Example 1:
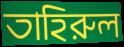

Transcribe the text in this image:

তাহিরুল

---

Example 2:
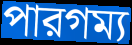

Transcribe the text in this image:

পারগম্য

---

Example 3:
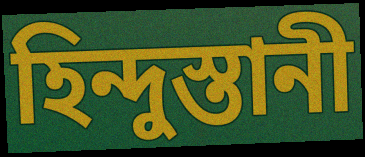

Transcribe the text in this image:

হিন্দুস্তানী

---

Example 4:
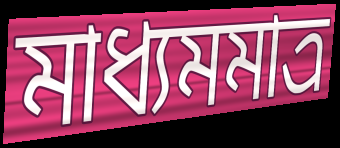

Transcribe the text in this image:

মাধ্যমমাত্র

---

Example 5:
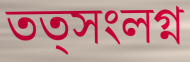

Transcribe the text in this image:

তত্সংলগ্ন